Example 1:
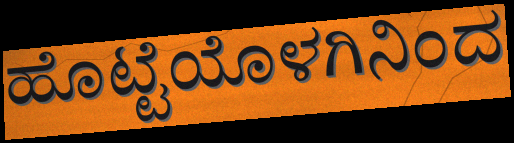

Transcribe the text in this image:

ಹೊಟ್ಟೆಯೊಳಗಿನಿಂದ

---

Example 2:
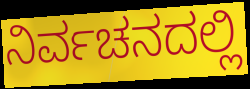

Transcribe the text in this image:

ನಿರ್ವಚನದಲ್ಲಿ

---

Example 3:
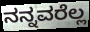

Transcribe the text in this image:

ನನ್ನವರೆಲ್ಲ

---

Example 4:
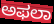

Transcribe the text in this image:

ಅಫಲಾ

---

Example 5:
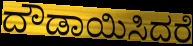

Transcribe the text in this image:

ದೌಡಾಯಿಸಿದರೆ